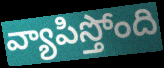
వ్యాపిస్తోంది